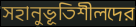
সহানুভূতিশীলদের